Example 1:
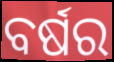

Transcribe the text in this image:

ବର୍ଷର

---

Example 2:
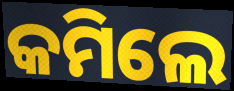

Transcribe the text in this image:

କମିଲେ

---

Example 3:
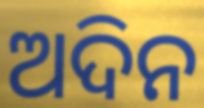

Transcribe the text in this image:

ଅଦିନ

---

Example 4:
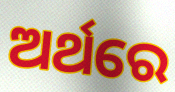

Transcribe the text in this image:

ଅର୍ଥରେ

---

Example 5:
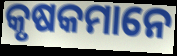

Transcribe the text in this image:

କୃଷକମାନେ